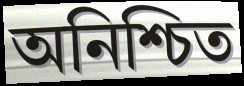
অনিশ্চিত